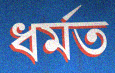
ধৰ্মত